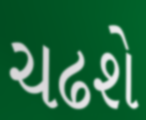
ચઢશે